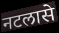
नटलासे